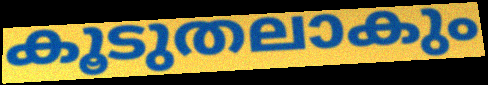
കൂടുതലാകും